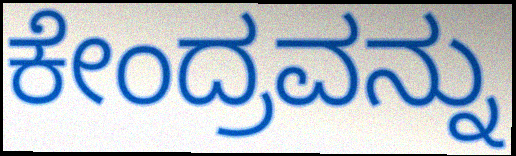
ಕೇಂದ್ರವನ್ನು